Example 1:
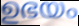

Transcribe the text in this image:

ഉഭയം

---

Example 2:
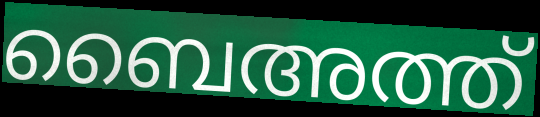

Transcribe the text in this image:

ബൈഅത്ത്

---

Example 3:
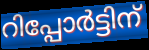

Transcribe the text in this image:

റിപ്പോർട്ടിന്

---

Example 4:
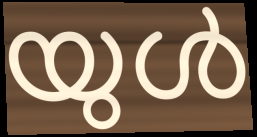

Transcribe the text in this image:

യുൾ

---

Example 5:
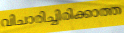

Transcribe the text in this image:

വിചാരിച്ചിരിക്കാത്ത